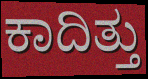
ಕಾದಿತ್ತು